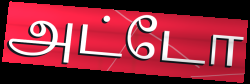
அட்டோ